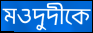
মওদুদীকে